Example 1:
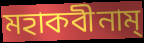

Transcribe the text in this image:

মহাকবীনাম্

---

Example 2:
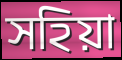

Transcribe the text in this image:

সহিয়া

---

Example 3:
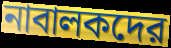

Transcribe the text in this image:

নাবালকদের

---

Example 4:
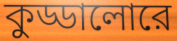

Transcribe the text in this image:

কুড্ডালোরে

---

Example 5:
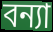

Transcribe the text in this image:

বন্যা